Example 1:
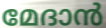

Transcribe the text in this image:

മേദാൻ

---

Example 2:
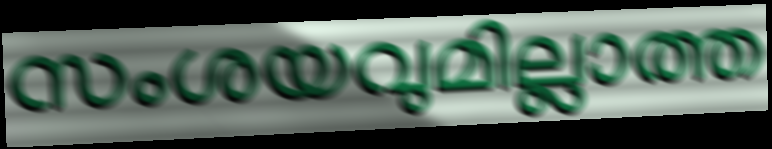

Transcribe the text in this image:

സംശയവുമില്ലാത്ത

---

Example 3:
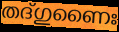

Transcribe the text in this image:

തദ്ഗുണൈഃ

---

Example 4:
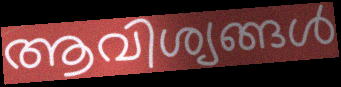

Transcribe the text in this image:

ആവിശ്യങ്ങൾ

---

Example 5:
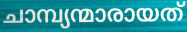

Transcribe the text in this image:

ചാമ്പ്യന്മാരായത്